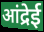
आंद्रेई